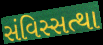
સંવિસ્સત્થા